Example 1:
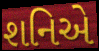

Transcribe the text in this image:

શનિએ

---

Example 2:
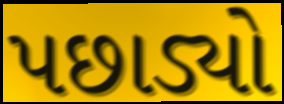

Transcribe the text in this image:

પછાડ્યો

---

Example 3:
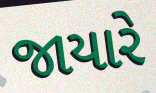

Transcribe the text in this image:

જાયારે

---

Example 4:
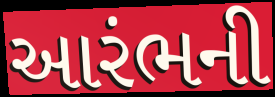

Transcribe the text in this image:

આરંભની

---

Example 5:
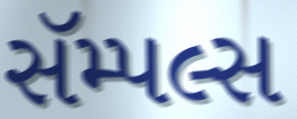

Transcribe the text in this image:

સૅમ્પલ્સ